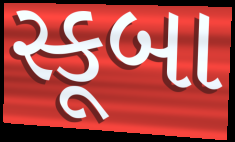
સ્કૂબા